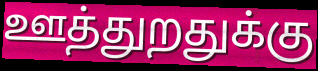
ஊத்துறதுக்கு